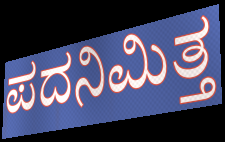
ಪದನಿಮಿತ್ತ